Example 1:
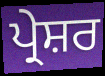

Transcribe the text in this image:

ਪ੍ਰੇਸ਼ਰ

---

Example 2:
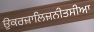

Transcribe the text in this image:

ਉਕਰਜ਼ਾਲਿਜ਼ਨੀਤਸੀਆ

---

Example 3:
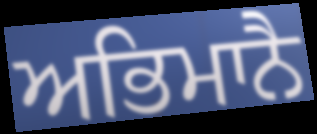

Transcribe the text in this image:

ਅਭਿਮਾਨੈ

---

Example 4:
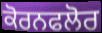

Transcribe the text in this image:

ਕੋਰਨਫਲੋਰ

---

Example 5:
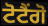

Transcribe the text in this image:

ਟੋਟੈਂਗੋ